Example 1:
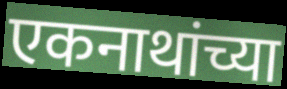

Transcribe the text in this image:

एकनाथांच्या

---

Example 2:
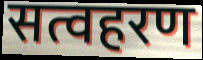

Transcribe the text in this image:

सत्वहरण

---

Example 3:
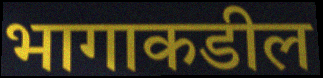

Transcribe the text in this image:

भागाकडील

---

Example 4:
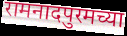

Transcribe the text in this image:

रामनादपुरमच्या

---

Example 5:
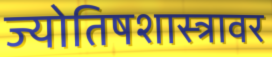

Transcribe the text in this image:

ज्योतिषशास्त्रावर